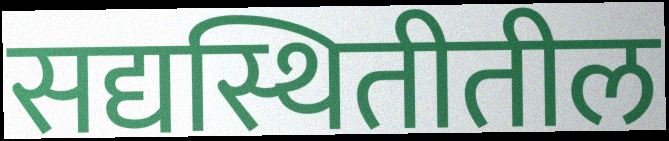
सद्यस्थितीतील